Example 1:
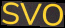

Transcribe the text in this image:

SVO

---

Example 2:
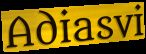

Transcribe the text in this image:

Adiasvi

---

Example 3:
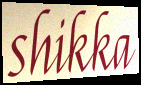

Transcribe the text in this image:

shikka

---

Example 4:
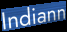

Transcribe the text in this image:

Indiann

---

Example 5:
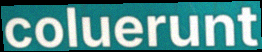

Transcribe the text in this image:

coluerunt